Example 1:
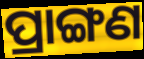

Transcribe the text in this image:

ପ୍ରାଙ୍ଗଣ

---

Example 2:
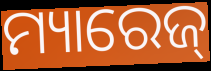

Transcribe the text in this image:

ମ୍ୟାରେଜ୍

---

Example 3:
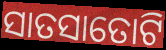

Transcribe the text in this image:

ସାତସାତୋଟି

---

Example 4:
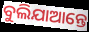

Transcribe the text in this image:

ବୁଲିଯାଆନ୍ତେ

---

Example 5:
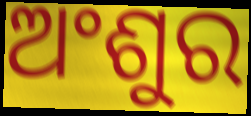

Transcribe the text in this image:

ଅଂଶୁର